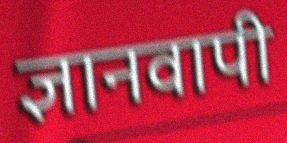
ज्ञानवापी